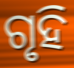
ଗୃହି